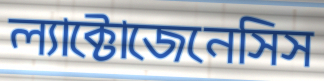
ল্যাক্টোজেনেসিস